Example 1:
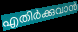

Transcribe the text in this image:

എതിർക്കുവാൻ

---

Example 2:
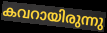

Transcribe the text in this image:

കവറായിരുന്നു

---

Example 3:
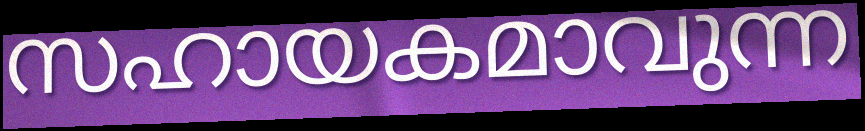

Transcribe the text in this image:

സഹായകമാവുന്ന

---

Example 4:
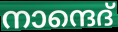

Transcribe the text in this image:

നാന്ദെദ്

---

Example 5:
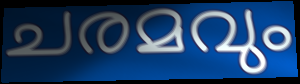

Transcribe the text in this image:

ചരമവും